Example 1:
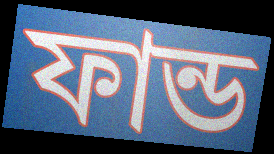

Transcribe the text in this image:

ফান্ড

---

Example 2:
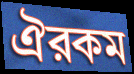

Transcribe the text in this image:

ঐরকম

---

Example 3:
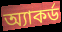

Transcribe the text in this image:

অ্যাকর্ড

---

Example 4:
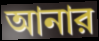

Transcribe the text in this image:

আনার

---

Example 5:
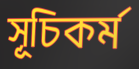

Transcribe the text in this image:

সূচিকর্ম